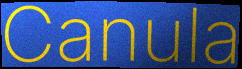
Canula